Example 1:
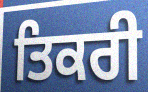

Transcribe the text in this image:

ਤਿਕਰੀ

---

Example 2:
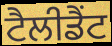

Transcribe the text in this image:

ਟੈਲੀਡੈਂਟ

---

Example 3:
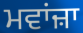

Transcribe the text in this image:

ਮਵਾਂਜ਼ਾ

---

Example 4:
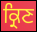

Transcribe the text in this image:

ਕ੍ਰਿਣ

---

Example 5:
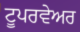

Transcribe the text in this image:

ਟੂਪਰਵੇਅਰ